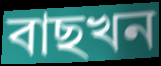
বাছখন